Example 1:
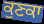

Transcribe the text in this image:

ਕੁਣਕਾ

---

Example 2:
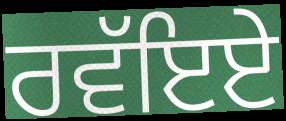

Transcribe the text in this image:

ਰਵੱਇਏ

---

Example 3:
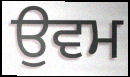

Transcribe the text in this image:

ਉਵਮ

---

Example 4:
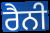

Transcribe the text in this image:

ਰੈਨੀ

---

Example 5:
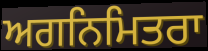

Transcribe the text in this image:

ਅਗਨਿਮਿਤਰਾ